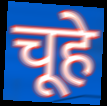
चूहे